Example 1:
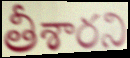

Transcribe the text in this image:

తీశారని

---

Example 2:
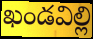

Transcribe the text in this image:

ఖండవిల్లి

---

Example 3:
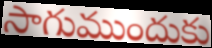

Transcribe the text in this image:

సాగుముందుకు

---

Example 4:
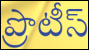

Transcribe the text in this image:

ప్రొటీస్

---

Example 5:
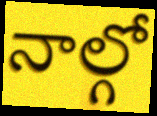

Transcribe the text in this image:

నాల్గో